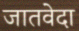
जातवेदा